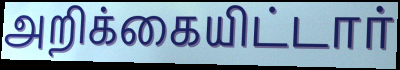
அறிக்கையிட்டார்